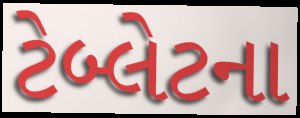
ટેબ્લેટના